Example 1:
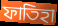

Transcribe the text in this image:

ফাতিহা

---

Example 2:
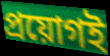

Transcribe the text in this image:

প্রয়োগই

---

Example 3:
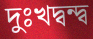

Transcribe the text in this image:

দুঃখদ্বন্দ্ব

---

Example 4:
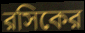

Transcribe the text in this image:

রসিকের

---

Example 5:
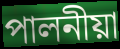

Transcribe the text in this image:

পালনীয়া